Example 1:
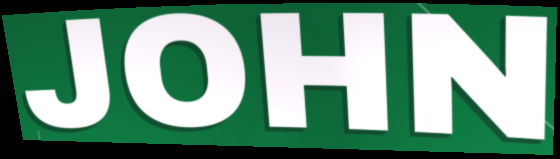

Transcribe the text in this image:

JOHN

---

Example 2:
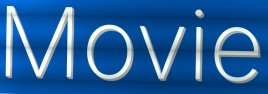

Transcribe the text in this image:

Movie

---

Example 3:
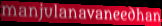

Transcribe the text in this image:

manjulanavaneedhan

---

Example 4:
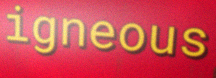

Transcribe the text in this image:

igneous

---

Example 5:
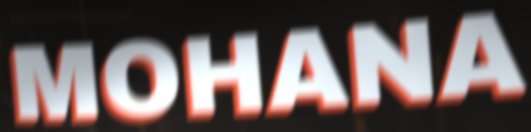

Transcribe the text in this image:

MOHANA